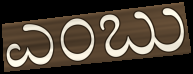
ಎಂಬು